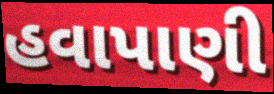
હવાપાણી